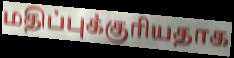
மதிப்புக்குரியதாக